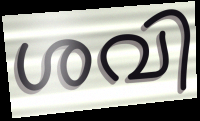
ശവി